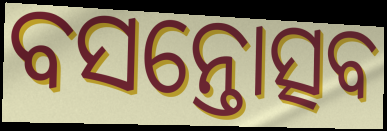
ବସନ୍ତୋତ୍ସବ